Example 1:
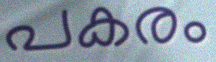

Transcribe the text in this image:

പകരം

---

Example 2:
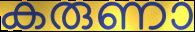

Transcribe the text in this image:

കരുണാ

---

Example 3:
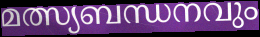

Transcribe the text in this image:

മത്സ്യബന്ധനവും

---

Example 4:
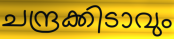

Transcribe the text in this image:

ചന്ദ്രക്കിടാവും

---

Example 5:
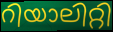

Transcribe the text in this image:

റിയാലിറ്റി